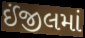
ઈંજીલમાં